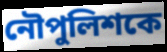
নৌপুলিশকে